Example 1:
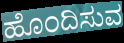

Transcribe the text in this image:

ಹೊಂದಿಸುವ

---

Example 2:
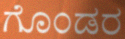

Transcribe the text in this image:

ಗೊಂಡರ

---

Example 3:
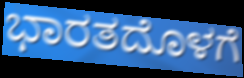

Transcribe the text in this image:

ಭಾರತದೊಳಗೆ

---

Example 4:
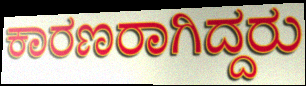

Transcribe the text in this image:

ಕಾರಣರಾಗಿದ್ದರು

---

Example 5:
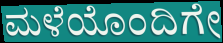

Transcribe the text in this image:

ಮಳೆಯೊಂದಿಗೇ